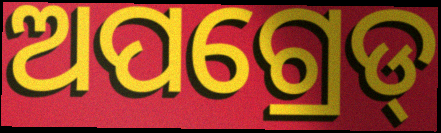
ଅପଗ୍ରେଡ୍